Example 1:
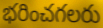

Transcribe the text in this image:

భరించగలరు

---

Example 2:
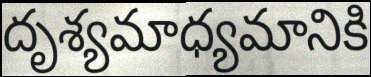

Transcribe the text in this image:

దృశ్యమాధ్యమానికి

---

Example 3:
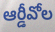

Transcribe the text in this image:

ఆర్డీవోల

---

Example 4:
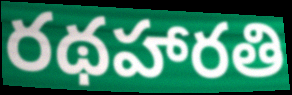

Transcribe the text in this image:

రథహారతి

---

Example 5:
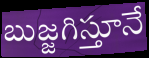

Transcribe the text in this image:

బుజ్జగిస్తూనే